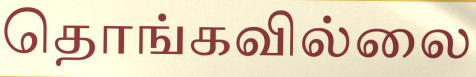
தொங்கவில்லை